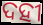
ଦହୀ